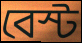
বেস্ট